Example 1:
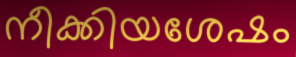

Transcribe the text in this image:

നീക്കിയശേഷം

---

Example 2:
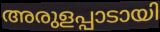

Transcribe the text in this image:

അരുളപ്പാടായി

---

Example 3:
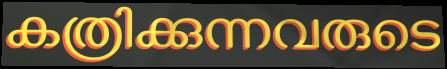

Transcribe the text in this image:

കത്രിക്കുന്നവരുടെ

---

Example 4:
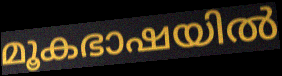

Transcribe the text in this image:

മൂകഭാഷയിൽ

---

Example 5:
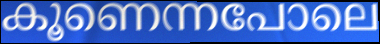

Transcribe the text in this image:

കൂണെന്നപോലെ